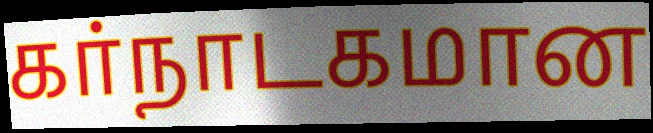
கர்நாடகமான